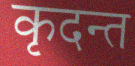
कृदन्त